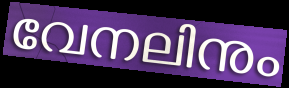
വേനലിനും